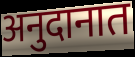
अनुदानात